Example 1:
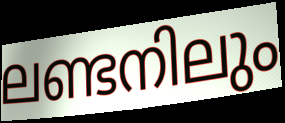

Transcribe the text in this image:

ലണ്ടനിലും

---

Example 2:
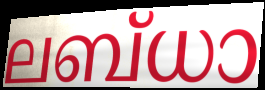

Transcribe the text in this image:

ലബ്ധാ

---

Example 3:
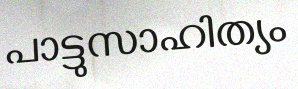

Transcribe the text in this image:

പാട്ടുസാഹിത്യം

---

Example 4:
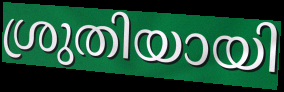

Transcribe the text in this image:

ശ്രുതിയായി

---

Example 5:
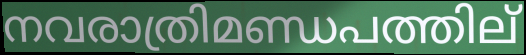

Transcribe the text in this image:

നവരാത്രിമണ്ഡപത്തില്